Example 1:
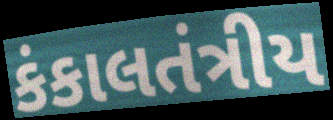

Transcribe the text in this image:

કંકાલતંત્રીય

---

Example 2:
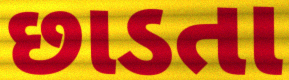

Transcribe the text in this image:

છાડતા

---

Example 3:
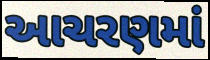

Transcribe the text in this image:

આચરણમાં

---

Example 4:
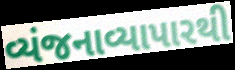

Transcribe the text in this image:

વ્યંજનાવ્યાપારથી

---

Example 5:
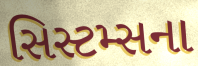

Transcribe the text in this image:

સિસ્ટમ્સના